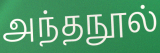
அந்தநூல்